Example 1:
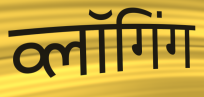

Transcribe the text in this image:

व्लॉगिंग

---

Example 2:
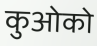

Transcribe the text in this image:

कुओको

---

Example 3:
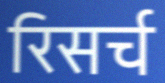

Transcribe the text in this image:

रिसर्च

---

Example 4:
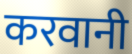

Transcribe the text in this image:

करवानी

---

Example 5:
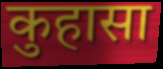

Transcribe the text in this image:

कुहासा